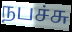
நபச்சு